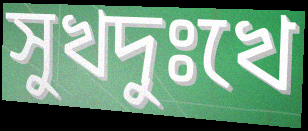
সুখদুঃখে